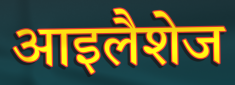
आइलैशेज